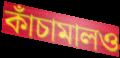
কাঁচামালও